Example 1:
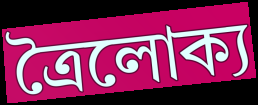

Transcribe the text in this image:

ত্রৈলোক্য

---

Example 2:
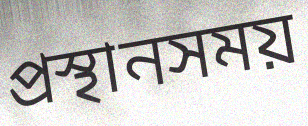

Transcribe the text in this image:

প্রস্থানসময়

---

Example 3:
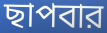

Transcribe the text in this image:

ছাপবার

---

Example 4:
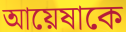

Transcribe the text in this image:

আয়েষাকে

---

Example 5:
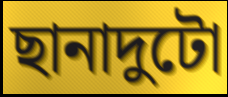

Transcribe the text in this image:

ছানাদুটো